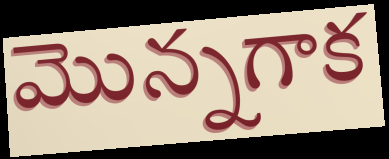
మొన్నగాక